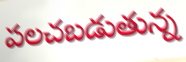
పలచబడుతున్న